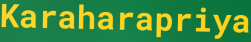
Karaharapriya